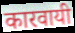
कारवायी